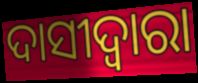
ଦାସୀଦ୍ୱାରା